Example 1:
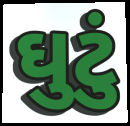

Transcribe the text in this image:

ઘુટું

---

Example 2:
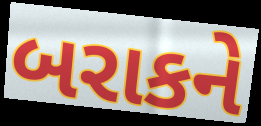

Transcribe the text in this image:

બરાકને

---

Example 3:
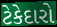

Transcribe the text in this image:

ટેકેદારો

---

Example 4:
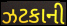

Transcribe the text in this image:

ઝટકાની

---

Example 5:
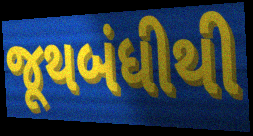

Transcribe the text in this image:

જૂથબંધીથી